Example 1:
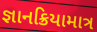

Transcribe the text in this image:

જ્ઞાનક્રિયામાત્ર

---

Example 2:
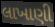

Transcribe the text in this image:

લાખાણી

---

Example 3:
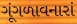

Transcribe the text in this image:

ગૂંગળાવનારાં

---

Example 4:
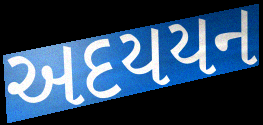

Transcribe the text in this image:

અદયયન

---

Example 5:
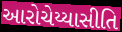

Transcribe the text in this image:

આરોચેય્યાસીતિ